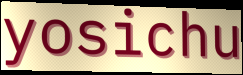
yosichu